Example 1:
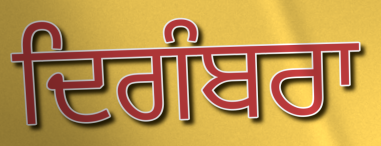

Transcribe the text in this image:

ਦਿਗੰਬਰਾ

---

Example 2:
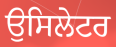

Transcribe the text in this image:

ਉਸਿਲੇਟਰ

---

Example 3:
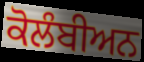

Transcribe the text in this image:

ਕੋਲੰਬੀਅਨ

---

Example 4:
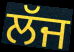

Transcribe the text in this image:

ਲੱਜ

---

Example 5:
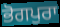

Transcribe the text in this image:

ਭੋਗਪੁਰਾ